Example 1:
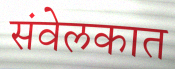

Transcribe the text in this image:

संवेलकात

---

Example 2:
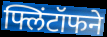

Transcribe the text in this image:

फ्लिंटॉफने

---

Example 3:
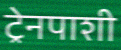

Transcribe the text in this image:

ट्रेनपाशी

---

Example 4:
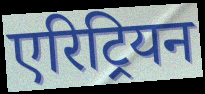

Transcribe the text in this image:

एरिट्रियन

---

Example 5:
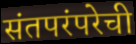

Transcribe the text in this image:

संतपरंपरेची